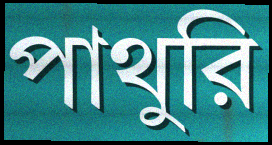
পাথুরি